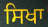
ਸਿਖਾ